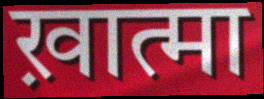
ख़ात्मा